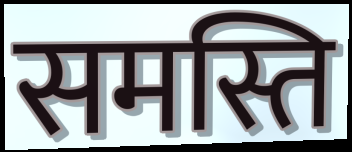
समस्ति